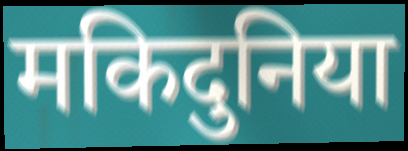
मकिदुनिया